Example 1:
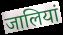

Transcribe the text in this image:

जालियां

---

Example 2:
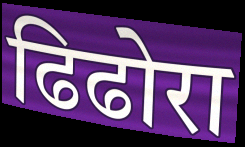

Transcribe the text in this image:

ढिढोरा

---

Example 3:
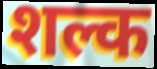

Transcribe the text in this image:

शल्क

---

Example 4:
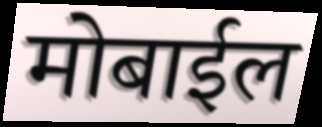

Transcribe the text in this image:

मोबाईल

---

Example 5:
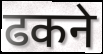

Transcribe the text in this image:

ढकने